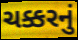
ચક્કરનું